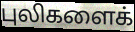
புலிகளைக்